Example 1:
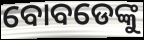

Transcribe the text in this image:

ବୋବଡେଙ୍କୁ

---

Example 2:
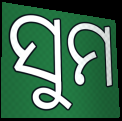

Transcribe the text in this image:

ସୁମ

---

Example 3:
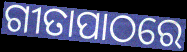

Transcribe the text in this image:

ଗୀତାପାଠରେ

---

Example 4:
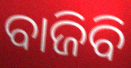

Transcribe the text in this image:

ବାଜିବି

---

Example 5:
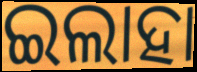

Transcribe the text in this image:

ଇଲାହା